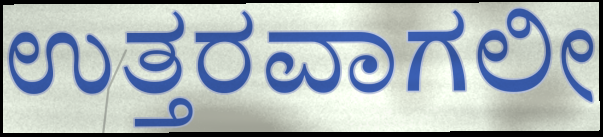
ಉತ್ತರವಾಗಲೀ